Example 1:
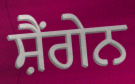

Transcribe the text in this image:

ਸ਼ੈਂਗੇਨ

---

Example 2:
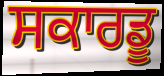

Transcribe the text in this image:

ਸਕਾਰਡੂ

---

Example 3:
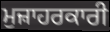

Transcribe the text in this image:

ਮੁਜ਼ਾਹਰਕਾਰੀ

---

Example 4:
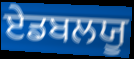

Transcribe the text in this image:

ਏਡਬਲਯੂ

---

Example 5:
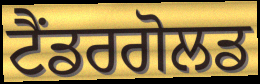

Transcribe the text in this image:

ਟੈਂਡਰਗੋਲਡ